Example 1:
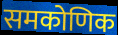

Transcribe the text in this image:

समकोणिक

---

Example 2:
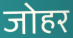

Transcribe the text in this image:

जोहर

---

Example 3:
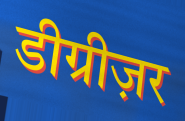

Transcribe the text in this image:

डीग्रीज़र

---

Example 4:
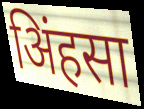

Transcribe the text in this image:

अिंहसा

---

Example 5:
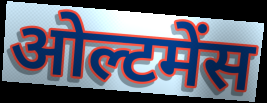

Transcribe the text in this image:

ओल्टमेंस